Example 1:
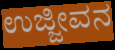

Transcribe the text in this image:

ಉಜ್ಜೀವನ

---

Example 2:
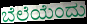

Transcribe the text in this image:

ಬೆಲೆಯೆಂದು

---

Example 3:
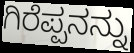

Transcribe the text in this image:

ಗಿರೆಪ್ಪನನ್ನು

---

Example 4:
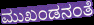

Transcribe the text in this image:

ಮುಖಂಡನಂತೆ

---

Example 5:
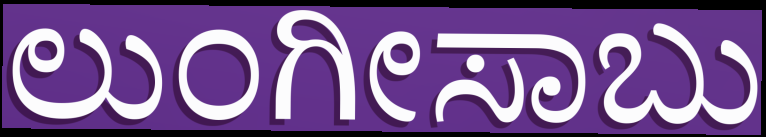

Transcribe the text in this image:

ಲುಂಗೀಸಾಬು